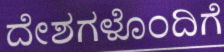
ದೇಶಗಳೊಂದಿಗೆ